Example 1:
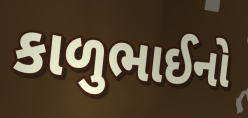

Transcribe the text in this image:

કાળુભાઈનો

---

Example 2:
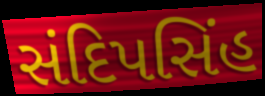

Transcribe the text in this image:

સંદિપસિંહ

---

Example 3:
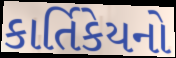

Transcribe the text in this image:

કાર્તિકેયનો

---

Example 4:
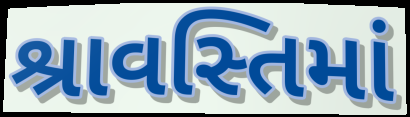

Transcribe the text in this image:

શ્રાવસ્તિમાં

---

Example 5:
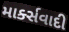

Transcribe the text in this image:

માર્ક્સવાદી